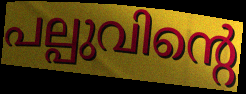
പല്പുവിന്റെ